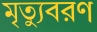
মৃত্যুবরণ